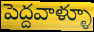
పెద్దవాళ్ళూ